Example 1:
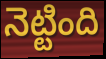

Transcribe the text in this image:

నెట్టింది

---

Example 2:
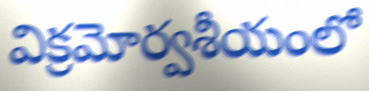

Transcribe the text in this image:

విక్రమోర్వశీయంలో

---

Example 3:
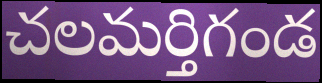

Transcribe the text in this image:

చలమర్తిగండ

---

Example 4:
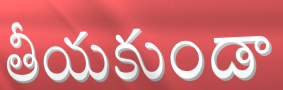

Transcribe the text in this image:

తీయకుండా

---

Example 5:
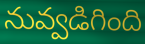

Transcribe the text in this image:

నువ్వడిగింది